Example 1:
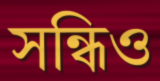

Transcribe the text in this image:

সন্ধিও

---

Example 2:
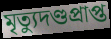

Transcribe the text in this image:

মৃত্যুদণ্ডপ্রাপ্ত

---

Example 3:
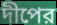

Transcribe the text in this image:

দীপের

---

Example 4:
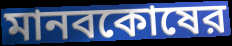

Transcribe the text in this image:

মানবকোষের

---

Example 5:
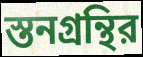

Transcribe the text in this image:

স্তনগ্রন্থির